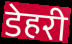
डेहरी